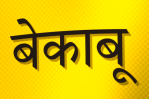
बेकाबू